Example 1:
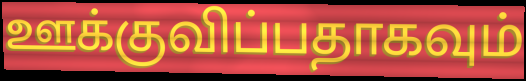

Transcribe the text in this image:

ஊக்குவிப்பதாகவும்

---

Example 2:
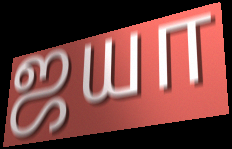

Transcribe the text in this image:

ஜயா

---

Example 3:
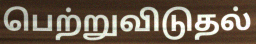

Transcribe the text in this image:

பெற்றுவிடுதல்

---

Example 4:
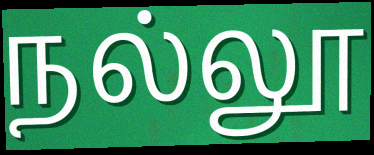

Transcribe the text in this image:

நல்லூ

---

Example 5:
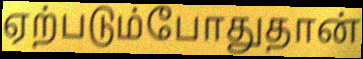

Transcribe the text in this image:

ஏற்படும்போதுதான்